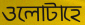
ওলোটাহে